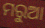
ମରୁଆ